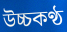
উচ্চকণ্ঠ